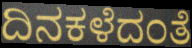
ದಿನಕಳೆದಂತೆ